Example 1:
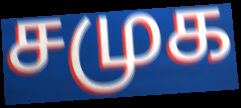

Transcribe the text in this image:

சமுக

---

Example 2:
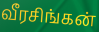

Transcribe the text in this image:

வீரசிங்கன்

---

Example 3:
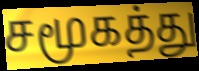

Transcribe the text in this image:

சமூகத்து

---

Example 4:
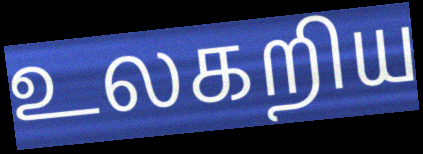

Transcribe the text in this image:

உலகறிய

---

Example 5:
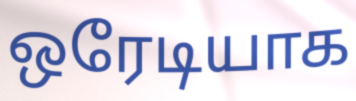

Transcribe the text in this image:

ஒரேடியாக